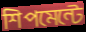
শিপমেন্টে